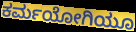
ಕರ್ಮಯೋಗಿಯೂ